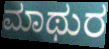
ಮಾಥುರ